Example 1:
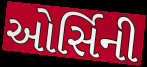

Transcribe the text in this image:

ઓર્સિની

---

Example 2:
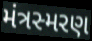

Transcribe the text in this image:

મંત્રસ્મરણ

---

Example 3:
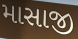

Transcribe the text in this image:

માસાજી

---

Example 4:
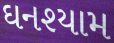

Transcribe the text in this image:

ઘનશ્યામ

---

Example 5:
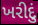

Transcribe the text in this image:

ખરીદું